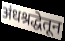
अंधश्रद्धेतून